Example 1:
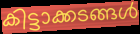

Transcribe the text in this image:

കിട്ടാക്കടങ്ങൾ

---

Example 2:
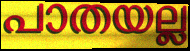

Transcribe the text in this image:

പാതയല്ല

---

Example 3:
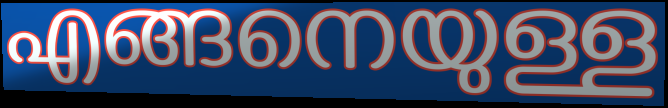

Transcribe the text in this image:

എങ്ങനെയുള്ള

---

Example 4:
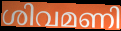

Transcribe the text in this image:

ശിവമണി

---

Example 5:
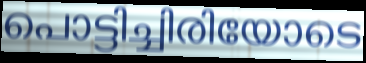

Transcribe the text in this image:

പൊട്ടിച്ചിരിയോടെ